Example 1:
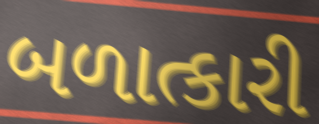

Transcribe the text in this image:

બળાત્કારી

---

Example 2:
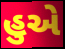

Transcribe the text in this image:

હુએ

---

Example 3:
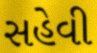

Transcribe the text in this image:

સહેવી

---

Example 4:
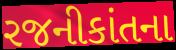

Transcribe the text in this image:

રજનીકાંતના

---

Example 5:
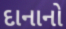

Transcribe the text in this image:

દાનાનો